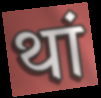
थां